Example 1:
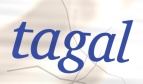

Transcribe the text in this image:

tagal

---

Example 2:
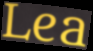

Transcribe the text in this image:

Lea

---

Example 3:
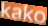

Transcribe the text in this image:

kako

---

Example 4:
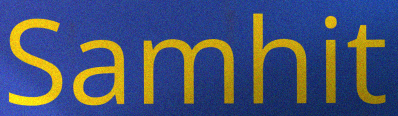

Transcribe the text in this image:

Samhit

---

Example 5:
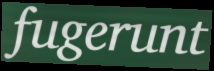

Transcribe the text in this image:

fugerunt